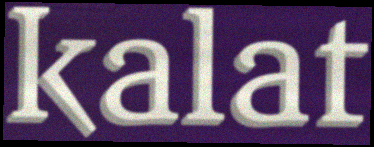
kalat